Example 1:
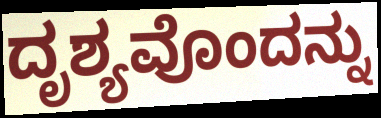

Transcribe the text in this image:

ದೃಶ್ಯವೊಂದನ್ನು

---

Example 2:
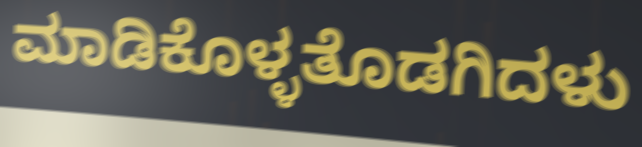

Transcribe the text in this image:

ಮಾಡಿಕೊಳ್ಳತೊಡಗಿದಳು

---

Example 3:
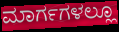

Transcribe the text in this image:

ಮಾರ್ಗಗಳಲ್ಲೂ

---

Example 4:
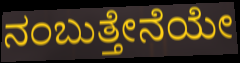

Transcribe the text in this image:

ನಂಬುತ್ತೇನೆಯೇ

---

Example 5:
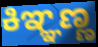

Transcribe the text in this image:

ಕಿಞ್ಞಣ್ಣ